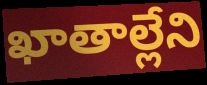
ఖాతాల్లేని